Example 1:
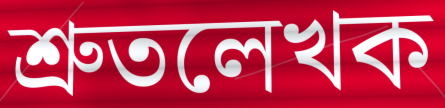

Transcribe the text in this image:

শ্রুতলেখক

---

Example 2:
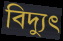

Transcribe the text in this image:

বিদ্যুৎ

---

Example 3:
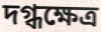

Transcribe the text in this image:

দগ্ধক্ষেত্র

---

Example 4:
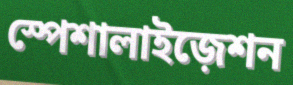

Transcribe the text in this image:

স্পেশালাইজ়েশন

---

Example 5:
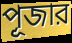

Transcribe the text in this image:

পূজার